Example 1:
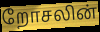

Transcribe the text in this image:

றோசலின்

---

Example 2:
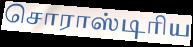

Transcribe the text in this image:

சொராஸ்டிரிய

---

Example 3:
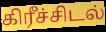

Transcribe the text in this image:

கிரீச்சிடல்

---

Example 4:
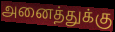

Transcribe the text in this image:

அனைத்துக்கு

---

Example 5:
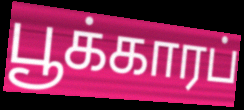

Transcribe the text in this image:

பூக்காரப்